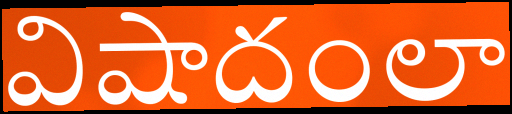
విషాదంలా